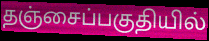
தஞ்சைப்பகுதியில்